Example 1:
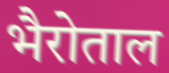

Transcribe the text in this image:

भैरोताल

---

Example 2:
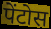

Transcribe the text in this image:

पेंटोस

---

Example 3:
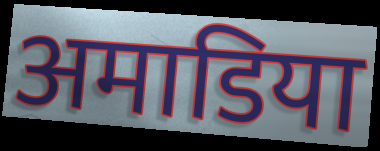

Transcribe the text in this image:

अमाडिया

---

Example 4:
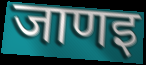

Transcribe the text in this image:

जाणइ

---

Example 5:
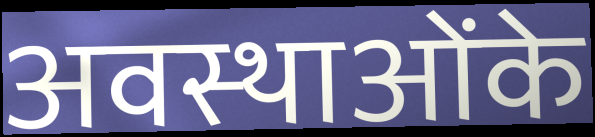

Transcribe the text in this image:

अवस्थाओंके